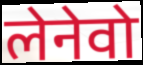
लेनेवो